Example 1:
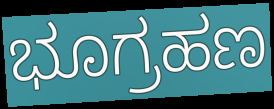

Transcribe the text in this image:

ಭೂಗ್ರಹಣ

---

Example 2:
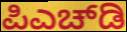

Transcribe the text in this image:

ಪಿಎಚ್‌ಡಿ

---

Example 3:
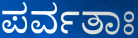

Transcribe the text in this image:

ಪರ್ವತಾಃ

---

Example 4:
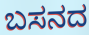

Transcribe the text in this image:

ಬಸನದ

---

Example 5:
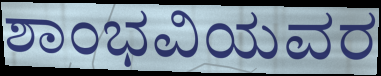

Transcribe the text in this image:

ಶಾಂಭವಿಯವರ